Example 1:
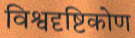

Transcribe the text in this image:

विश्वदृष्टिकोण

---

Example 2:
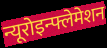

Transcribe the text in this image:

न्यूरोइन्फ्लेमेशन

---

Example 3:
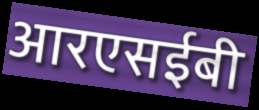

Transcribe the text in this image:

आरएसईबी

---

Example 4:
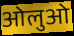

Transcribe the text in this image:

ओलुओ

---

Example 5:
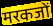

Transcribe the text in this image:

मरकजों